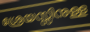
ശ്രേയസ്സിനുള്ള